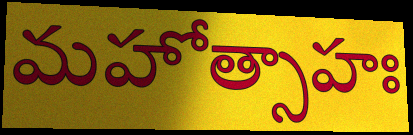
మహోత్సాహః